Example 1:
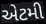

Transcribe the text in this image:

એટમી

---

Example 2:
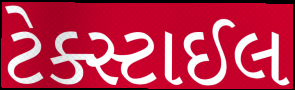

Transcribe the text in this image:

ટેક્સ્ટાઈલ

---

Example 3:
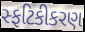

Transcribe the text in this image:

સ્ફટિકીકરણ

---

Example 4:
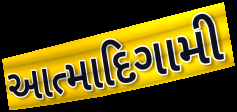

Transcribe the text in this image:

આત્માદિગામી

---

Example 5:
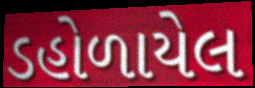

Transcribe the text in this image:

ડહોળાયેલ